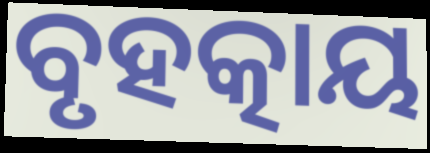
ବୃହତ୍କାୟ